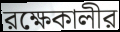
রক্ষেকালীর